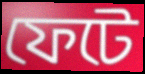
ফেটে